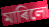
মাৰিলো